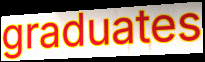
graduates